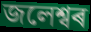
জলেশ্বৰ